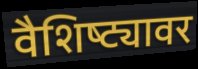
वैशिष्ट्यावर